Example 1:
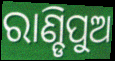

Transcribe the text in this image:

ରାଣ୍ଡିପୁଅ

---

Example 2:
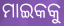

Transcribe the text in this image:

ମାଇକକୁ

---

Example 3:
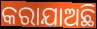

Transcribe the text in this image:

କରାଯାଅଛି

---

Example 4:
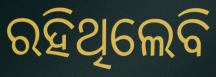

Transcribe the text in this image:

ରହିଥିଲେବି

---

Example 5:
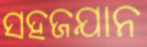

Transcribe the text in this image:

ସହଜଯାନ